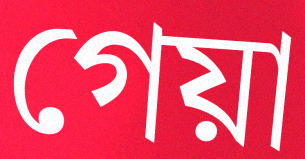
গেয়া